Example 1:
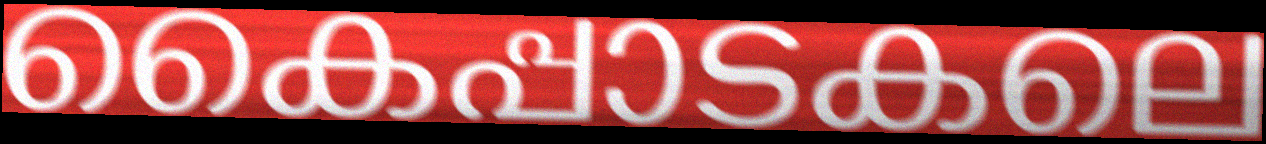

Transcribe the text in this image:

കൈപ്പാടകലെ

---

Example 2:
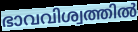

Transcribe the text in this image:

ഭാവവിശ്വത്തിൽ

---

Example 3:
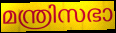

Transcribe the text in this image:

മന്ത്രിസഭാ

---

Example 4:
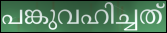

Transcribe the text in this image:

പങ്കുവഹിച്ചത്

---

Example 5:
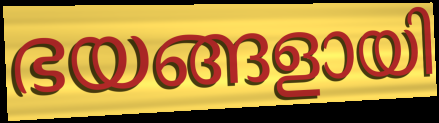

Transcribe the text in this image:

ഭയങ്ങളായി